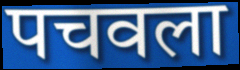
पचवला